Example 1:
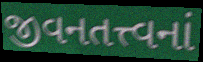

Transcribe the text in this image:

જીવનતત્ત્વનાં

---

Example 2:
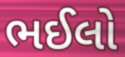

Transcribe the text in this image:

ભઈલો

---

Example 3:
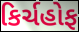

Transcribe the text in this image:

કિર્ચહોફ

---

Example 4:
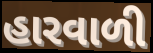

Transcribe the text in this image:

હારવાળી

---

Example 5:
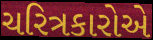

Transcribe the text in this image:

ચરિત્રકારોએ